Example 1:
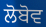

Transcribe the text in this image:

ਲੋਬੋਵ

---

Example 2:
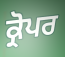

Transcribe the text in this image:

ਕ੍ਰੋਪਰ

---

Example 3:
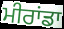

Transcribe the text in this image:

ਮੀਰਾਂਡਾ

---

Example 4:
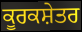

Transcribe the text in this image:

ਕੂਰਕਸ਼ੇਤਰ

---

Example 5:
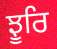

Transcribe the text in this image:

ਝੂਰਿ